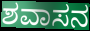
ಶವಾಸನ